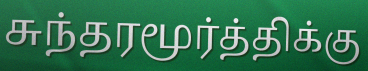
சுந்தரமூர்த்திக்கு